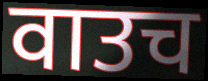
वाउच